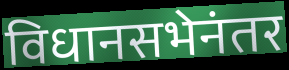
विधानसभेनंतर